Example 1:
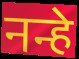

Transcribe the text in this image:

नन्हे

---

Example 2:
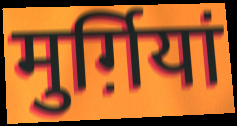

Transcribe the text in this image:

मुर्ग़ियां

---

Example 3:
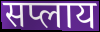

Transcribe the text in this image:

सप्लाय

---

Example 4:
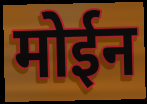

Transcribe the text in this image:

मोईन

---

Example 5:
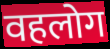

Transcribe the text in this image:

वहलोग